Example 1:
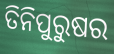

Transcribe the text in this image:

ତିନିପୁରୁଷର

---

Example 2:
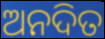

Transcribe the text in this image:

ଅନଦିତ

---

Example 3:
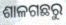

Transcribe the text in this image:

ଶାଳଗଛରୁ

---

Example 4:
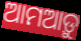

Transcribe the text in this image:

ଆମଆଡ଼ୁ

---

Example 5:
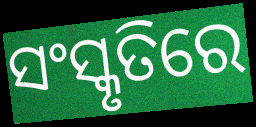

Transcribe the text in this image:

ସଂସ୍କୃତିରେ